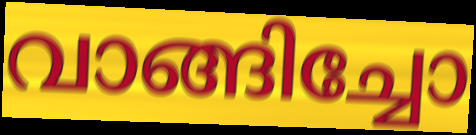
വാങ്ങിച്ചോ